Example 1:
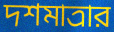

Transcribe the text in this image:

দশমাত্রার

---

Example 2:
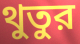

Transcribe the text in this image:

থুতুর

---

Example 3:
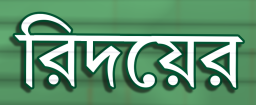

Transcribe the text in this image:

রিদয়ের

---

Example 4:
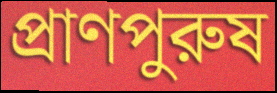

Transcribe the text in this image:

প্রাণপুরুষ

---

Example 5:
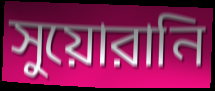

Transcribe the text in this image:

সুয়োরানি